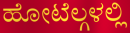
ಹೋಟೆಲ್ಗಳಲ್ಲಿ